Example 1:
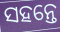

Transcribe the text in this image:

ସହନ୍ତେ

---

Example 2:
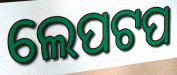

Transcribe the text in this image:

ଲେପଟପ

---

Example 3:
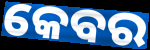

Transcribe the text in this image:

କେବର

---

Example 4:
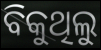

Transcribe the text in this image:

ବିକୁଥିଲୁ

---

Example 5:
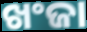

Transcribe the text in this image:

ଖଂଜା